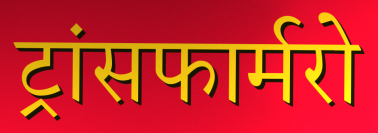
ट्रांसफार्मरो